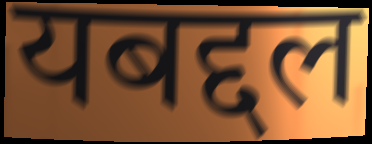
यबद्दल